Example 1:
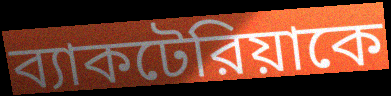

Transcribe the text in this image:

ব্যাকটেরিয়াকে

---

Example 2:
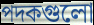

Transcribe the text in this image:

পদকগুলো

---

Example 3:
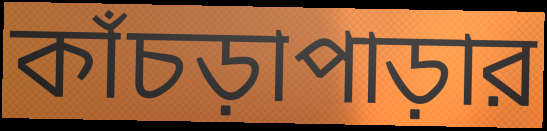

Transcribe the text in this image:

কাঁচড়াপাড়ার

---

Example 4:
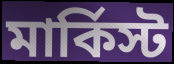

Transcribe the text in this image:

মার্কিস্ট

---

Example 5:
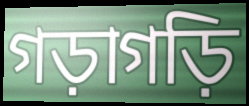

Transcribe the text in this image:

গড়াগড়ি